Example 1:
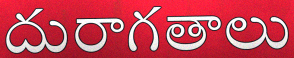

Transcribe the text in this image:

దురాగతాలు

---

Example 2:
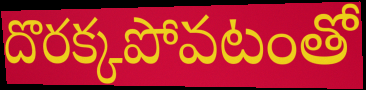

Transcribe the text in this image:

దొరక్కపోవటంతో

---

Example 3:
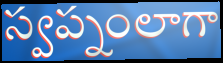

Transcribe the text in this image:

స్వప్నంలాగా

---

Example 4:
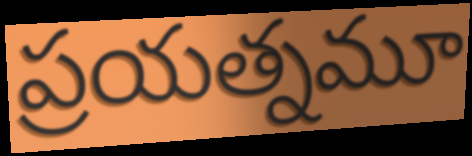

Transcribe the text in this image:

ప్రయత్నమూ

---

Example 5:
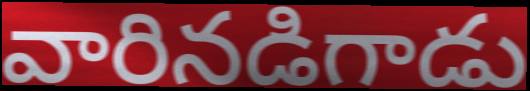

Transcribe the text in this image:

వారినడిగాడు